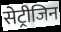
सेट्रीजिन